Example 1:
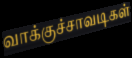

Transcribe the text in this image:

வாக்குச்சாவடிகள்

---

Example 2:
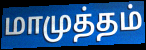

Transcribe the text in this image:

மாமுத்தம்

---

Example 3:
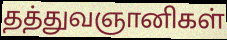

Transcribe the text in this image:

தத்துவஞானிகள்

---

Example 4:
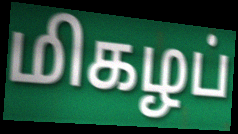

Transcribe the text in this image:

மிகழப்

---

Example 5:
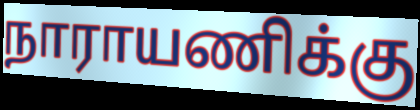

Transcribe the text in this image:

நாராயணிக்கு